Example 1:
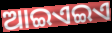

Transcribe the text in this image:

ଆଇଏଇଏ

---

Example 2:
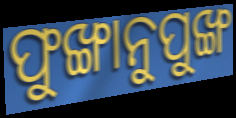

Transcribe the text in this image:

ଫୁଙ୍ଖାନୁପୁଙ୍ଖ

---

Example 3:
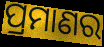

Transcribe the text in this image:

ପ୍ରମାଣର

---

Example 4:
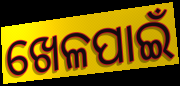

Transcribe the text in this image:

ଖେଳପାଇଁ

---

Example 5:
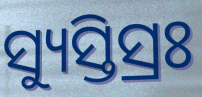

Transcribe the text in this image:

ସ୍ୟୁସ୍ତିସ୍ରଃ